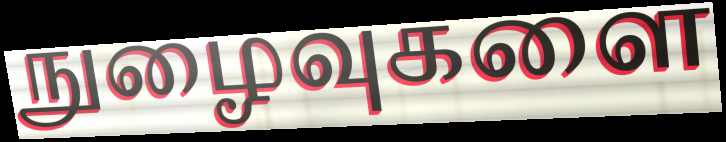
நுழைவுகளை